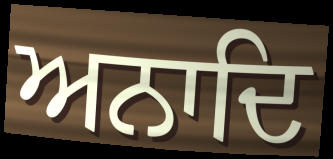
ਅਨਾਦਿ